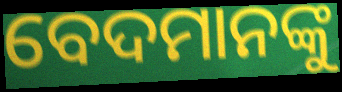
ବେଦମାନଙ୍କୁ